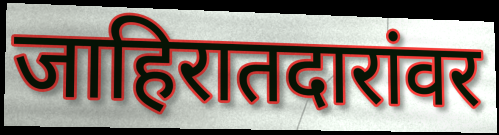
जाहिरातदारांवर